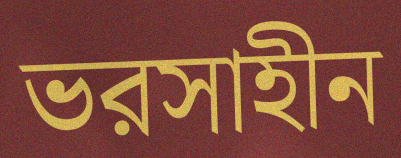
ভরসাহীন